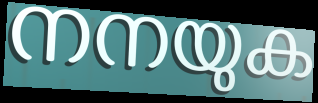
നനയുക